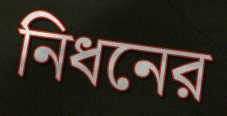
নিধনের